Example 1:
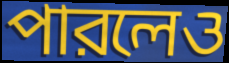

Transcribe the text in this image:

পারলেও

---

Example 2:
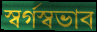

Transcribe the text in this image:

স্বর্গস্বভাব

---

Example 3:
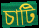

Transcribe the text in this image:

চাটি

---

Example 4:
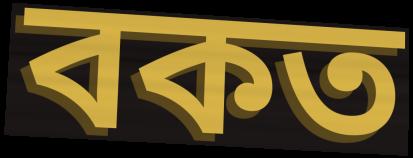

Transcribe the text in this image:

বকত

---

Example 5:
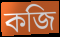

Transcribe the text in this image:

কজি